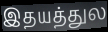
இதயத்துல